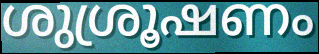
ശുശ്രൂഷണം